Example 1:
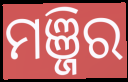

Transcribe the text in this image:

ମଞ୍ଜିର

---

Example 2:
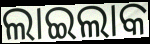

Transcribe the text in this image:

ଲାଇଲାକ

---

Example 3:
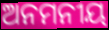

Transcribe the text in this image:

ଅନମନୀୟ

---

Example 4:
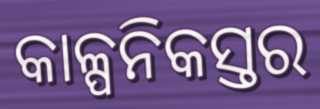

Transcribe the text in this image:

କାଳ୍ପନିକସ୍ତର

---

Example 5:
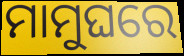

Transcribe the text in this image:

ମାମୁଘରେ